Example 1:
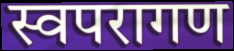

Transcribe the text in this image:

स्वपरागण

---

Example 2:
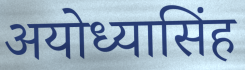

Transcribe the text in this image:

अयोध्यासिंह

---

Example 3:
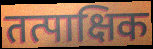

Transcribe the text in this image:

तत्पाक्षिक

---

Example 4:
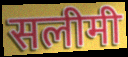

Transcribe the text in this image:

सलीमी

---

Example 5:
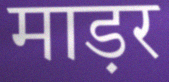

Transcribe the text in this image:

माड़र